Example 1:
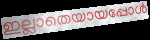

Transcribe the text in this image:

ഇല്ലാതെയായപ്പോൾ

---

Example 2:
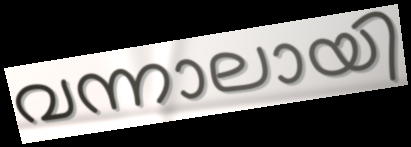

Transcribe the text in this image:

വന്നാലായി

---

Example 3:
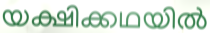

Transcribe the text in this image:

യക്ഷിക്കഥയിൽ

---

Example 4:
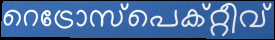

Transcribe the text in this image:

റെട്രോസ്പെക്റ്റീവ്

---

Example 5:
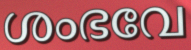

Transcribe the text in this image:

ശംഭവേ